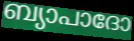
ബ്യാപാദോ